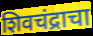
शिवचंद्राचा